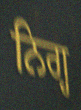
ਨਿਗ੍ਹ